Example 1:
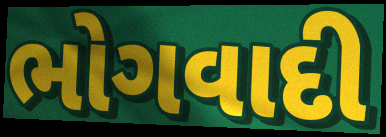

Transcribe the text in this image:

ભોગવાદી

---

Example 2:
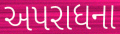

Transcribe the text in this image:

અપરાધના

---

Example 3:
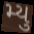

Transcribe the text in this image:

મ્યુ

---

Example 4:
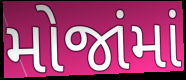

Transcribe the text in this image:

મોજાંમાં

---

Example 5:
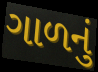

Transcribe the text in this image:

ગાળનું